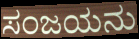
ಸಂಜಯನು